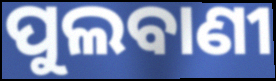
ପୁଲବାଣୀ